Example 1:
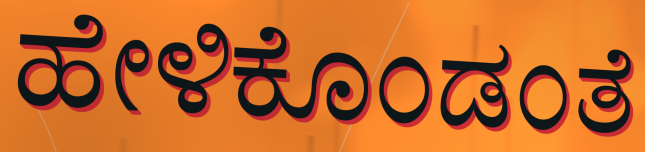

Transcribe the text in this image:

ಹೇಳಿಕೊಂಡಂತೆ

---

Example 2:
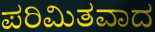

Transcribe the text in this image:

ಪರಿಮಿತವಾದ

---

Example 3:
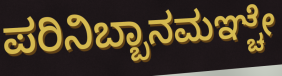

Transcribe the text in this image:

ಪರಿನಿಬ್ಬಾನಮಞ್ಚೇ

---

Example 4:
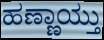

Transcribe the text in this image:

ಹಣ್ಣಾಯ್ತು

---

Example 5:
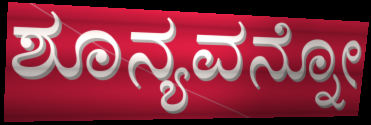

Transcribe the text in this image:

ಶೂನ್ಯವನ್ನೋ